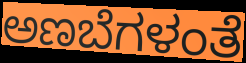
ಅಣಬೆಗಳಂತೆ